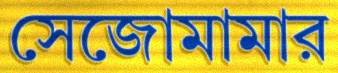
সেজোমামার